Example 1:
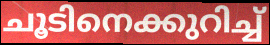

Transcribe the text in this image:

ചൂടിനെക്കുറിച്ച്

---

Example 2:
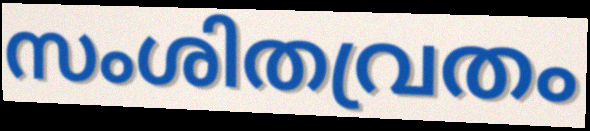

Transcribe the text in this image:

സംശിതവ്രതം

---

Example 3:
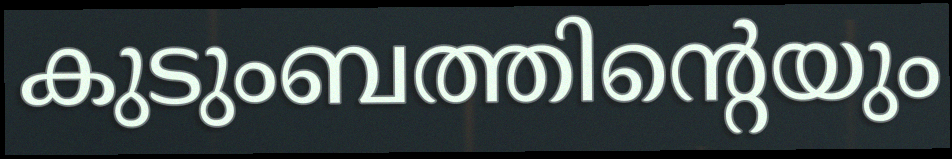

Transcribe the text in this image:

കുടുംബത്തിന്റെയും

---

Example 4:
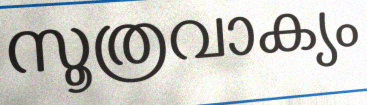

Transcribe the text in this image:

സൂത്രവാക്യം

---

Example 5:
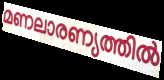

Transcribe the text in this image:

മണലാരണ്യത്തിൽ